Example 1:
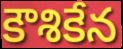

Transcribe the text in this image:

కౌశికేన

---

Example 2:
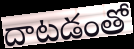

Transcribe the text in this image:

దాటడంతో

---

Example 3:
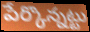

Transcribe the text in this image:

పేర్కొన్నట్టు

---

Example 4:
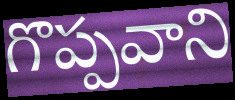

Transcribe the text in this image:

గొప్పవాని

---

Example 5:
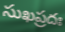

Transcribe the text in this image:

సుఖప్రదః